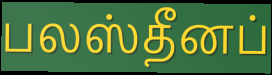
பலஸ்தீனப்